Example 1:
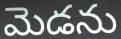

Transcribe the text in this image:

మెడను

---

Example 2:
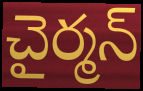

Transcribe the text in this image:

చైర్మన్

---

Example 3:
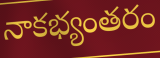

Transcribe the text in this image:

నాకభ్యంతరం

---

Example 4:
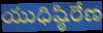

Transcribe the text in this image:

యుధిష్ఠిరేణ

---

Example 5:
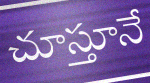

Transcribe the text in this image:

చూస్తూనే